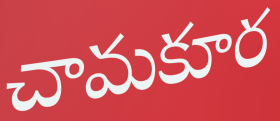
చామకూర